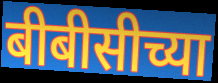
बीबीसीच्या